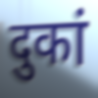
दुकां